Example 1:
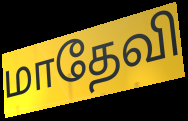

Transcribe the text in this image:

மாதேவி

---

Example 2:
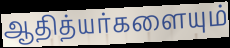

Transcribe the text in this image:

ஆதித்யர்களையும்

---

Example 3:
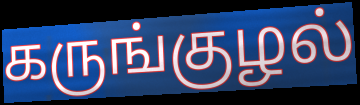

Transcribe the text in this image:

கருங்குழல்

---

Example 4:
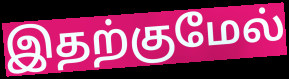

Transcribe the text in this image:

இதற்குமேல்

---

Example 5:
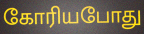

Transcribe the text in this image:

கோரியபோது